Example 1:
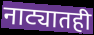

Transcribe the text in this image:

नाट्यातही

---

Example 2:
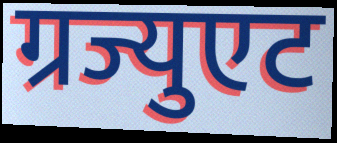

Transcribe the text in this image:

ग्रज्युएट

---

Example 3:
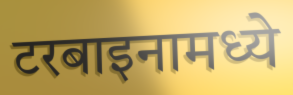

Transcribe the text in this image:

टरबाइनामध्ये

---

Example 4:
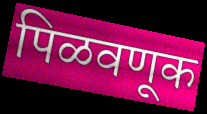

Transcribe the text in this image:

पिळवणूक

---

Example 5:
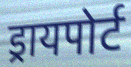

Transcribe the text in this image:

ड्रायपोर्ट